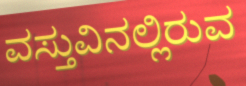
ವಸ್ತುವಿನಲ್ಲಿರುವ